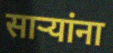
सार्‍यांना